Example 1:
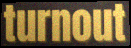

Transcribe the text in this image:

turnout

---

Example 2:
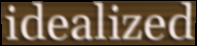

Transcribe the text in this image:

idealized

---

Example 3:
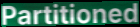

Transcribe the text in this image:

Partitioned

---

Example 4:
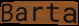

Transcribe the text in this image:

Barta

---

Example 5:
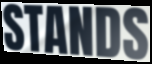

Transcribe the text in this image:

STANDS